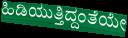
ಹಿಡಿಯುತ್ತಿದ್ದಂತೆಯೇ